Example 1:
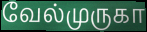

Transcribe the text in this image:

வேல்முருகா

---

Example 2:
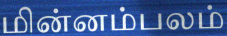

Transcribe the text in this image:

மின்னம்பலம்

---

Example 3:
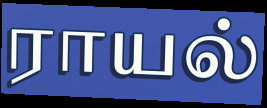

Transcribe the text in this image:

ராயல்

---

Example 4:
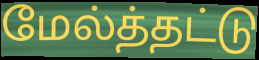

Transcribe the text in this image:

மேல்த்தட்டு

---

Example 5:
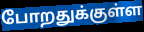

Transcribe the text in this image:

போறதுக்குள்ள